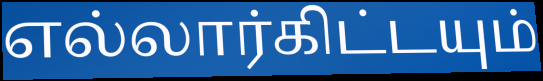
எல்லார்கிட்டயும்